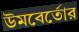
উমবের্তোর